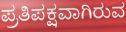
ಪ್ರತಿಪಕ್ಷವಾಗಿರುವ